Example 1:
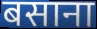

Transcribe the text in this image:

बसाना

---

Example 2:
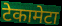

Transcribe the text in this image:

टेकामेटा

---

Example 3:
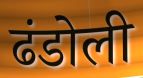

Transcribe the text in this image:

ढंडोली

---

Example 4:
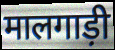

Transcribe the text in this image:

मालगाड़ी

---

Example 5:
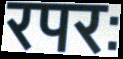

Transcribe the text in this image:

रपरः